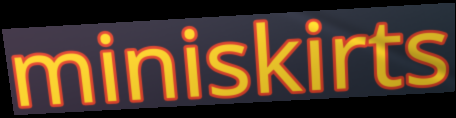
miniskirts